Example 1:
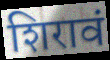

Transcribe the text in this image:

शिरावं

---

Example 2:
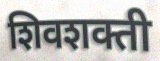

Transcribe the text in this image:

शिवशक्ती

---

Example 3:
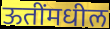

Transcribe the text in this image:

ऊतींमधील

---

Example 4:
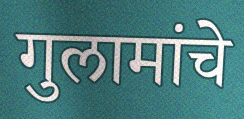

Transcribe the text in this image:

गुलामांचे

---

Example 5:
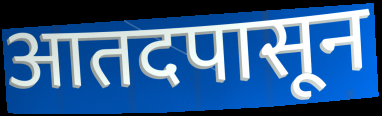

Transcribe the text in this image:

आतदपासून